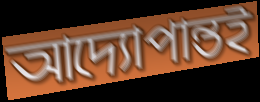
আদ্যোপান্তই